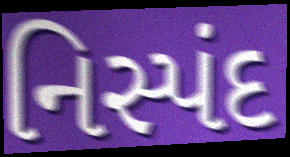
નિસ્પંદ